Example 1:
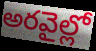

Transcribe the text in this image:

అరవైల్లో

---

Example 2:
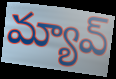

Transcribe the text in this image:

మ్యావ్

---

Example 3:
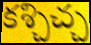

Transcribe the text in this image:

కశ్చిచ్చ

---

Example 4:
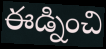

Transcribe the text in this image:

ఈడ్నించి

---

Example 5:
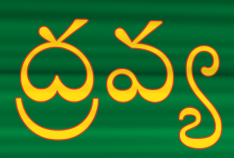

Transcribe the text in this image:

ద్రవ్య